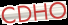
CDHO